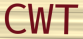
CWT